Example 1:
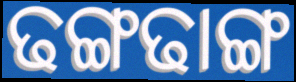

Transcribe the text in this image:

ଢଙ୍ଗଢାଙ୍ଗ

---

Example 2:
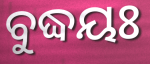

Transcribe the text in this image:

ବୁଦ୍ଧୟଃ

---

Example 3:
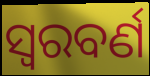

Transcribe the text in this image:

ସ୍ଵରବର୍ଣ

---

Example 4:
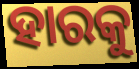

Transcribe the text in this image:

ହାରକୁ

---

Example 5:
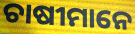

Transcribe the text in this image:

ଚାଷୀମାନେ